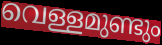
വെള്ളമുണ്ടും